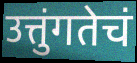
उत्तुंगतेचं